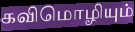
கவிமொழியும்